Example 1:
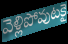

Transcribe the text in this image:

వెళ్లిపోవుటకై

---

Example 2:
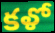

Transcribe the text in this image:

కళో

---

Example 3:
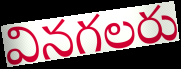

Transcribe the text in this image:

వినగలరు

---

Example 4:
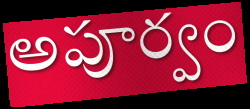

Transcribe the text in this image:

అపూర్వం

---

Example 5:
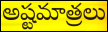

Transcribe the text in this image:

అష్టమాత్రలు